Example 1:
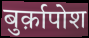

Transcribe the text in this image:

बुर्क़ापोश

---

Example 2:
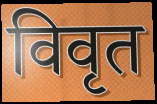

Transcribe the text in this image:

विवृत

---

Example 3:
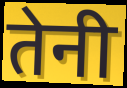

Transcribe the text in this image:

तेनी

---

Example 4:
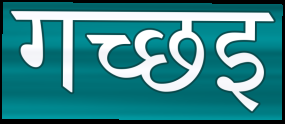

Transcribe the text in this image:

गच्छइ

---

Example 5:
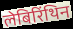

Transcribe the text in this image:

लेबिरिंथिन